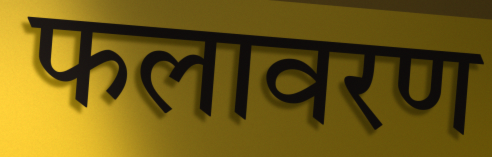
फलावरण